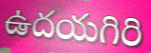
ఉదయగిరి